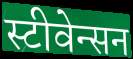
स्टीवेन्सन